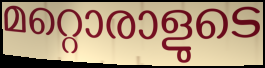
മറ്റൊരാളുടെ